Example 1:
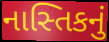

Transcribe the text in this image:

નાસ્તિકનું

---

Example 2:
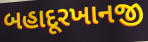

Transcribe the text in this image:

બહાદૂરખાનજી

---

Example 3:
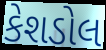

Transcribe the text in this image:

કેશડોલ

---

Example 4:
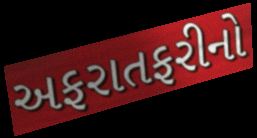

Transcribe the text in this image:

અફરાતફરીનો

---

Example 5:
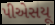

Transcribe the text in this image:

પીએસયૂ